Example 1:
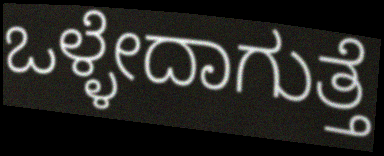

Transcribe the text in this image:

ಒಳ್ಳೇದಾಗುತ್ತೆ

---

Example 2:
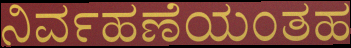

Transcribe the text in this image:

ನಿರ್ವಹಣೆಯಂತಹ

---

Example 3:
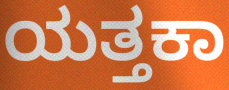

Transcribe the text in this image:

ಯತ್ತಕಾ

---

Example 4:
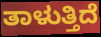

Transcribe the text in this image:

ತಾಳುತ್ತಿದೆ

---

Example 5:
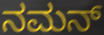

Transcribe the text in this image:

ನಮನ್